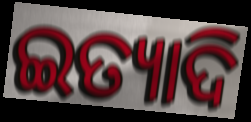
ଇତ୍ଯାଦି